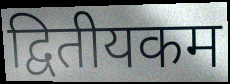
द्वितीयकम